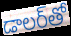
డాలర్‌తో